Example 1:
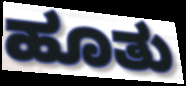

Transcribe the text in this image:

ಹೂತು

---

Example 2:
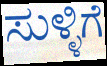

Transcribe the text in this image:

ಸುಳ್ಳಿಗೆ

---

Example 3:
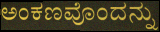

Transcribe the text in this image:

ಅಂಕಣವೊಂದನ್ನು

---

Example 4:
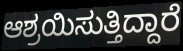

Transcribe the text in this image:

ಆಶ್ರಯಿಸುತ್ತಿದ್ದಾರೆ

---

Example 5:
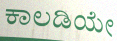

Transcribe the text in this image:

ಕಾಲಡಿಯೇ